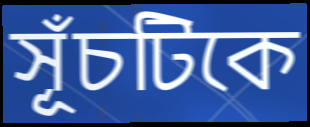
সূঁচটিকে